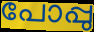
പോപ്പു